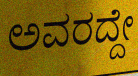
ಅವರದ್ದೇ